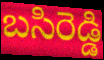
బసిరెడ్డి